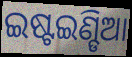
ଇଷ୍ଟଇଣ୍ଡିଆ